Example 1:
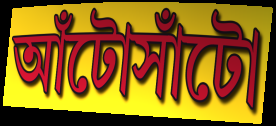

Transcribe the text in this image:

আঁটোসাঁটো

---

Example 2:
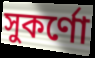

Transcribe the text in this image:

সুকর্ণো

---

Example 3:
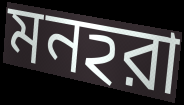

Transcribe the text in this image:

মনহরা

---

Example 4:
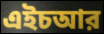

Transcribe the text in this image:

এইচআর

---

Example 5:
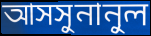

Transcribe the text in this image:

আসসুনানুল